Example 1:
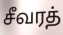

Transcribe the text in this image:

சீவரத்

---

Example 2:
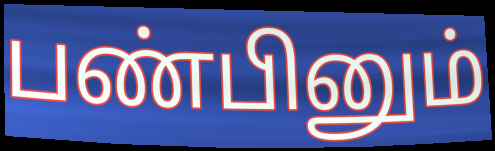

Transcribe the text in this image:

பண்பினும்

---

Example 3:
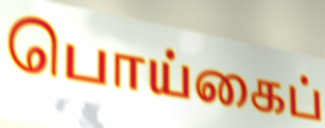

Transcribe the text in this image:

பொய்கைப்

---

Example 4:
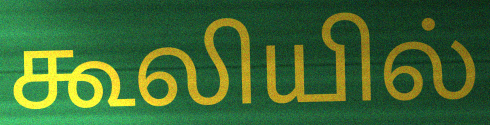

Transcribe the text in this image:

கூலியில்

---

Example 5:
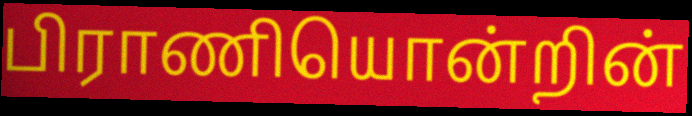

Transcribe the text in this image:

பிராணியொன்றின்